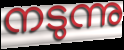
നടുന്നു